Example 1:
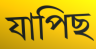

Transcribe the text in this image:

যাপিছ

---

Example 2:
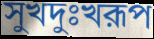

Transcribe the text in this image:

সুখদুঃখরূপ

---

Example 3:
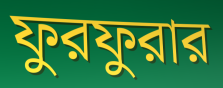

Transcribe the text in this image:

ফুরফুরার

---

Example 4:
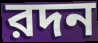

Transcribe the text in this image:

রদন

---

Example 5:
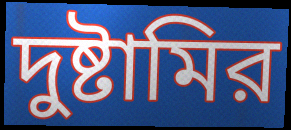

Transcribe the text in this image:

দুষ্টামির